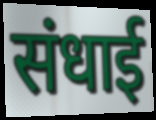
संधाई